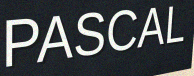
PASCAL